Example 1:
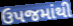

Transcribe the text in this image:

ઉપજમાંથી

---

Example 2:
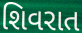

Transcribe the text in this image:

શિવરાત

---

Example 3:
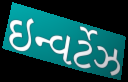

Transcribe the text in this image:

ઇન્વર્ટેઝ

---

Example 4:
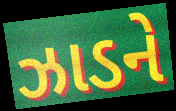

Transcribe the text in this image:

ઝાડને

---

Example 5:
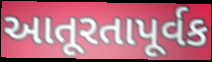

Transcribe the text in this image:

આતૂરતાપૂર્વક